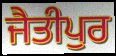
ਜੈਤੀਪੁਰ